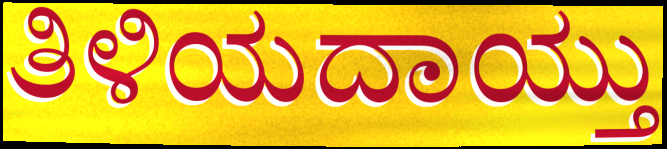
ತಿಳಿಯದಾಯ್ತು